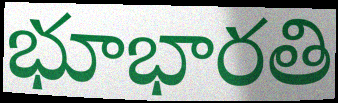
భూభారతి